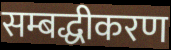
सम्बद्धीकरण